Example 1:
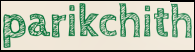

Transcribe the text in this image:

parikchith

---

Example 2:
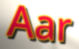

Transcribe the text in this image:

Aar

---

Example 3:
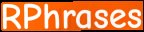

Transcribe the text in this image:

RPhrases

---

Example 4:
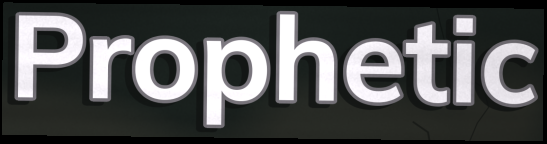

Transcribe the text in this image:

Prophetic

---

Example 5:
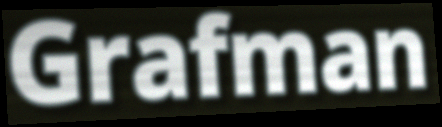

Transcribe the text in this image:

Grafman